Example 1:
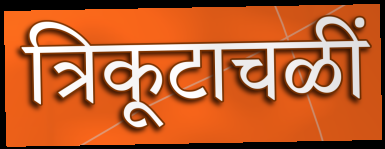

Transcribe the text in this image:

त्रिकूटाचळीं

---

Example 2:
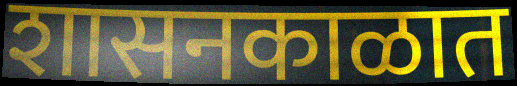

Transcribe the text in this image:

शासनकाळात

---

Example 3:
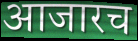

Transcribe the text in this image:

आजारच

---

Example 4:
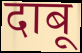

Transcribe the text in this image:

दाबू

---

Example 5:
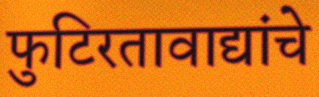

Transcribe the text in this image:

फुटिरतावाद्यांचे